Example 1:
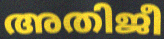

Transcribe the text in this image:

അതിജീ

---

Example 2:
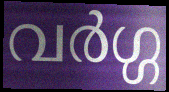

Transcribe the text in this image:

വർഗ്ഗ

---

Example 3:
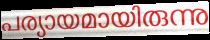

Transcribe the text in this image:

പര്യായമായിരുന്നു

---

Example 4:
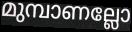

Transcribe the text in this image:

മുമ്പാണല്ലോ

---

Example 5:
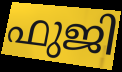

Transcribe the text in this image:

ഫുജി